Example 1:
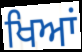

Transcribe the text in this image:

ਖਿਆਂ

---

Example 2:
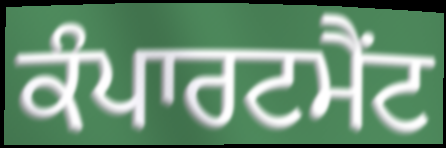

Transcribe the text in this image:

ਕੰਪਾਰਟਮੈਂਟ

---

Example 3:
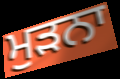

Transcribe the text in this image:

ਮੁਡ਼ਨਾ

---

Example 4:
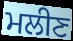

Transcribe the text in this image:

ਮਲੀਣ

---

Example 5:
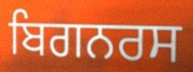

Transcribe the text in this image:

ਬਿਗਨਰਸ